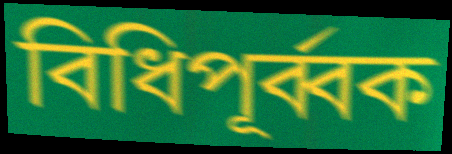
বিধিপূর্ব্বক